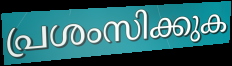
പ്രശംസിക്കുക